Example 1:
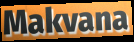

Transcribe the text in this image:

Makvana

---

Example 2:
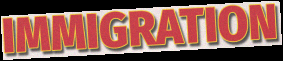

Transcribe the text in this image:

IMMIGRATION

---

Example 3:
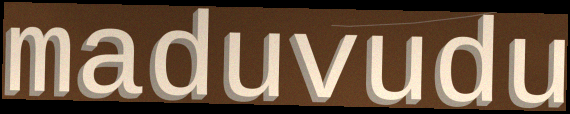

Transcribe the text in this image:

maduvudu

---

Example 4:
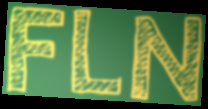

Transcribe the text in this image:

FLN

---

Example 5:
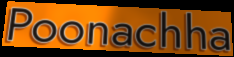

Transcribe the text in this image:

Poonachha